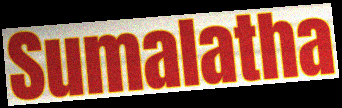
Sumalatha